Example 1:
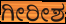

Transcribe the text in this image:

ಗೀರೀಶ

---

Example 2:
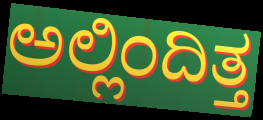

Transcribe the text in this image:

ಅಲ್ಲಿಂದಿತ್ತ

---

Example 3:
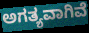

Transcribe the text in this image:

ಅಗತ್ಯವಾಗಿವೆ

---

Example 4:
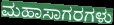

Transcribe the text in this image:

ಮಹಾಸಾಗರಗಳು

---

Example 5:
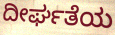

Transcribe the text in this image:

ದೀರ್ಘತೆಯ